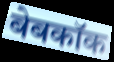
बेबकॉक